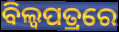
ବିଲ୍ଵପତ୍ରରେ